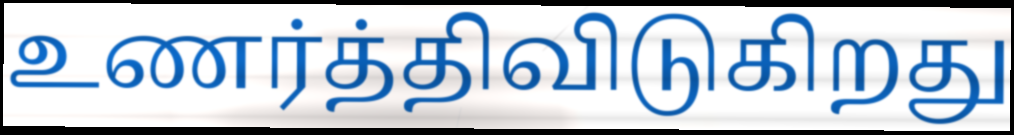
உணர்த்திவிடுகிறது